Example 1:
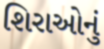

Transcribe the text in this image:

શિરાઓનું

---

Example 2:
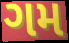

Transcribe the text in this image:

ગમ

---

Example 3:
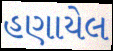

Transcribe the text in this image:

હણાયેલ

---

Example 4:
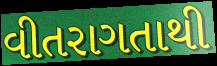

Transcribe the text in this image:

વીતરાગતાથી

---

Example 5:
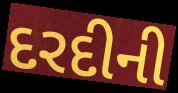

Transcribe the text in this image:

દરદીની